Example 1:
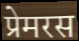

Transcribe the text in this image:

प्रेमरस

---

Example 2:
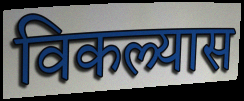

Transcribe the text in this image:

विकल्यास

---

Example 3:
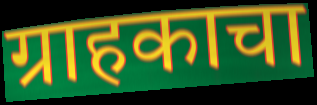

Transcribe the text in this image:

ग्राहकाचा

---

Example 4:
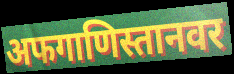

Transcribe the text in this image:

अफगाणिस्तानवर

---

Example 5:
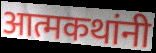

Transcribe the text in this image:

आत्मकथांनी